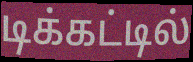
டிக்கட்டில்